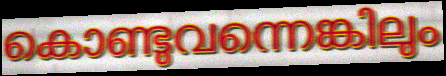
കൊണ്ടുവന്നെങ്കിലും